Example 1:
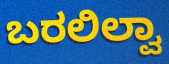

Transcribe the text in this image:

ಬರಲಿಲ್ವಾ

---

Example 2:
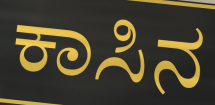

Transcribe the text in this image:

ಕಾಸಿನ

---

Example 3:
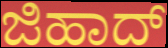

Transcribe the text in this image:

ಜಿಹಾದ್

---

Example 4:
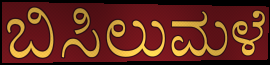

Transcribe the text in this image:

ಬಿಸಿಲುಮಳೆ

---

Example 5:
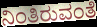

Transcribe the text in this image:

ನಿಂತಿರುವಂತೆ